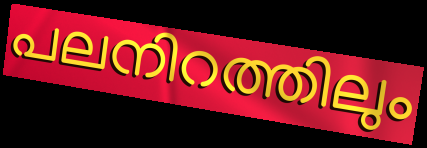
പലനിറത്തിലും